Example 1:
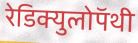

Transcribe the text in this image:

रेडिक्युलोपॅथी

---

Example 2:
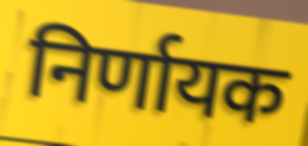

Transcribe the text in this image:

निर्णायक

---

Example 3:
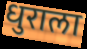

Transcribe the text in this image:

धुराला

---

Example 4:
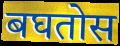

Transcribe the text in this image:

बघतोस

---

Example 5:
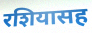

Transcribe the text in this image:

रशियासह